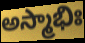
అస్మాభిః